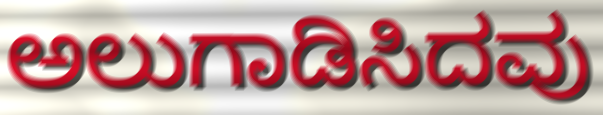
ಅಲುಗಾಡಿಸಿದವು